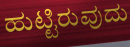
ಹುಟ್ಟಿರುವುದು